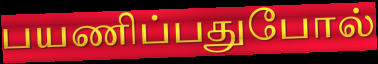
பயணிப்பதுபோல்